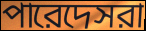
পারেদেসরা